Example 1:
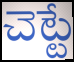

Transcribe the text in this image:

చెట్టే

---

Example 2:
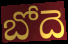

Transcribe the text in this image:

బోదె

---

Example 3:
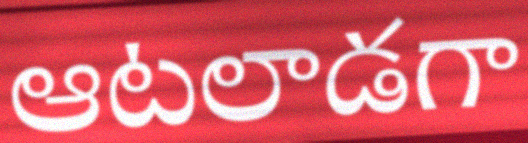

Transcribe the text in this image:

ఆటలాడగా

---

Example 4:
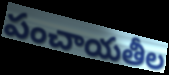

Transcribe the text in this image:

పంచాయతీల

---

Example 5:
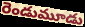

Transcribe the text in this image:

రెండుమూడు